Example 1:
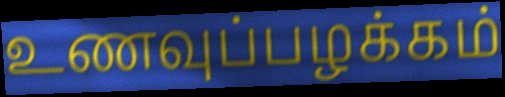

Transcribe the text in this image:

உணவுப்பழக்கம்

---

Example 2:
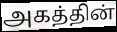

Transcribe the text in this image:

அகத்தின்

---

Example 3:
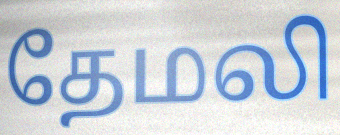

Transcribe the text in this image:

தேமலி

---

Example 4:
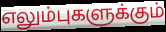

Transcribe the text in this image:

எலும்புகளுக்கும்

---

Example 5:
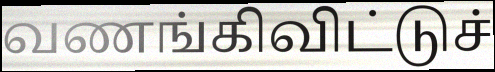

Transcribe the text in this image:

வணங்கிவிட்டுச்